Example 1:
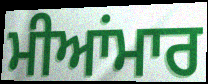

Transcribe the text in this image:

ਮੀਆਂਮਾਰ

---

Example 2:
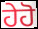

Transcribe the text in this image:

ਹੇਹੋ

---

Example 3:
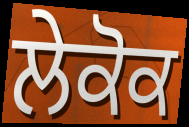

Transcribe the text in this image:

ਲੇਕੋਕ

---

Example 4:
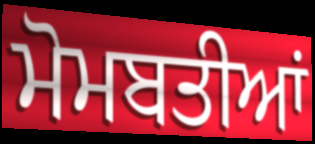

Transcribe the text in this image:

ਮੋਮਬਤੀਆਂ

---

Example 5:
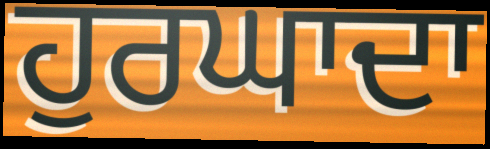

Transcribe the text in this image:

ਹੁਰਘਾਦਾ